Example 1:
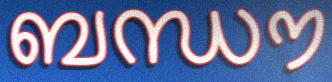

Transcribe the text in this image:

ബന്ധൗ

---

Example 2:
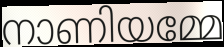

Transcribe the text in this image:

നാണിയമ്മേ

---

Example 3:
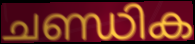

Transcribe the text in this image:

ചണ്ഡിക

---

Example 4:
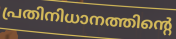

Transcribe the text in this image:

പ്രതിനിധാനത്തിന്റെ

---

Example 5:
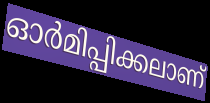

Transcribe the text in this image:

ഓർമിപ്പിക്കലാണ്